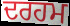
ਦਰਹਮ